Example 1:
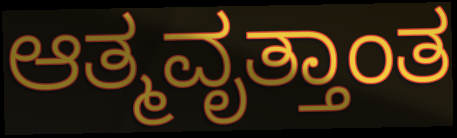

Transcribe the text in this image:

ಆತ್ಮವೃತ್ತಾಂತ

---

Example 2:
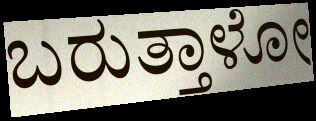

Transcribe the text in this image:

ಬರುತ್ತಾಳೋ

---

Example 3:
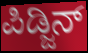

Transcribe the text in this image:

ಪಿಡ್ಜಿನ್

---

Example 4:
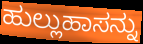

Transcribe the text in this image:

ಹುಲ್ಲುಹಾಸನ್ನು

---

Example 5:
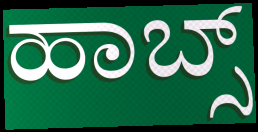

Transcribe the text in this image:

ಹಾಬ್ಸ್